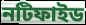
নটিফাইড